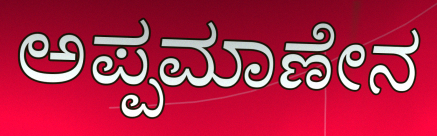
ಅಪ್ಪಮಾಣೇನ